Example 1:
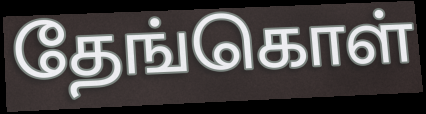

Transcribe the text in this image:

தேங்கொள்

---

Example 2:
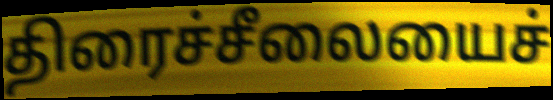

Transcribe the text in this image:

திரைச்சீலையைச்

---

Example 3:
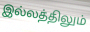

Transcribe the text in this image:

இல்லத்திலும்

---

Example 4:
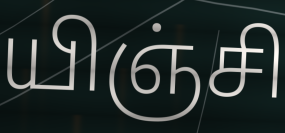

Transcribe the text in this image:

யிஞ்சி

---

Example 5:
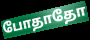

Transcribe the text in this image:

போதாதோ